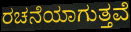
ರಚನೆಯಾಗುತ್ತವೆ